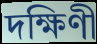
দক্ষিণী